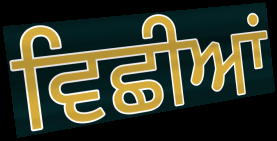
ਵਿਛੀਆਂ